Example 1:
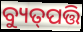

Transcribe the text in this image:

ବ୍ୟୁତ୍‌ପତ୍ତି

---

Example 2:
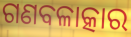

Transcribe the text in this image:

ଗଣବଳାତ୍କାର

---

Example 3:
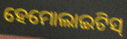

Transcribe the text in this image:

ହେମୋଲାଇଟିସ୍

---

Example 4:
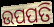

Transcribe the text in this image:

ଉପପତି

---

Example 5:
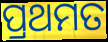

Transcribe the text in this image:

ପ୍ରଥମତ